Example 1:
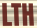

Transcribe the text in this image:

LTH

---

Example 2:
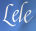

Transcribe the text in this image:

Lele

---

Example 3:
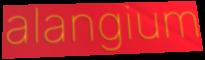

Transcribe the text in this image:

alangium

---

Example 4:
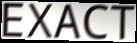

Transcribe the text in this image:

EXACT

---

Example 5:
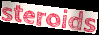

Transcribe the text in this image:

steroids